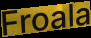
Froala